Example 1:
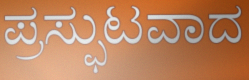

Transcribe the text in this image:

ಪ್ರಸ್ಫುಟವಾದ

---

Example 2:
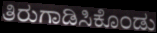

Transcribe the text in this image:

ತಿರುಗಾಡಿಸಿಕೊಂಡು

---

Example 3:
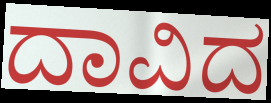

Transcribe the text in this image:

ದಾವಿದ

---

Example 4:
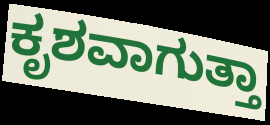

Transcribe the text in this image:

ಕೃಶವಾಗುತ್ತಾ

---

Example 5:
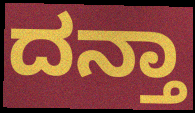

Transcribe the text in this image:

ದನ್ತಾ